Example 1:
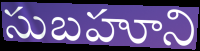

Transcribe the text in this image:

సుబహూని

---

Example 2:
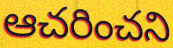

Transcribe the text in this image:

ఆచరించని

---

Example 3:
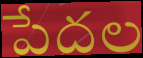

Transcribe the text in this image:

పేదల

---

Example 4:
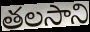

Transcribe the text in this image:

తలసాని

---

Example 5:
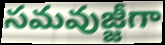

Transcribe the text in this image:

సమవుజ్జీగా